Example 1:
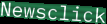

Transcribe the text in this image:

Newsclick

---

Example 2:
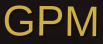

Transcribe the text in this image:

GPM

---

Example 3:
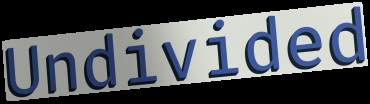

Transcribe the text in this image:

Undivided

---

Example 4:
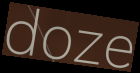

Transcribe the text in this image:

doze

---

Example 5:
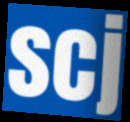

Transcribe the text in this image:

scj